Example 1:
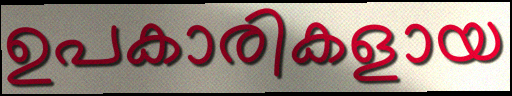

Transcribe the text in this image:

ഉപകാരികളായ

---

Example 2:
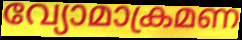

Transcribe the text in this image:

വ്യോമാക്രമണ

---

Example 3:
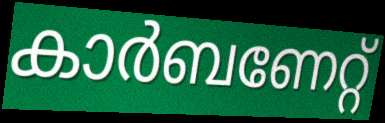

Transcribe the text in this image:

കാർബണേറ്റ്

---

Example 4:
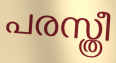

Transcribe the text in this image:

പരസ്ത്രീ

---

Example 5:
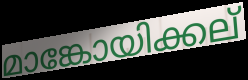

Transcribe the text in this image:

മാങ്കോയിക്കല്